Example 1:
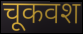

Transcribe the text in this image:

चूकवश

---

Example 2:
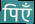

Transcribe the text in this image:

पिएँ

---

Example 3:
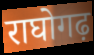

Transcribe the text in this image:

राघोगढ़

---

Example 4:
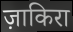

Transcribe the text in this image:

ज़ाकिरा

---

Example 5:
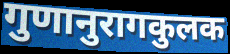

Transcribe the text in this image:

गुणानुरागकुलक